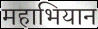
महाभियान